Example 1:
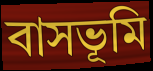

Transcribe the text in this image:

বাসভূমি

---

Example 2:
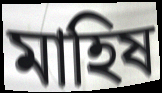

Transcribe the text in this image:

মাহিষ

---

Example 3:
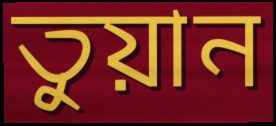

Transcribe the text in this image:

তুয়ান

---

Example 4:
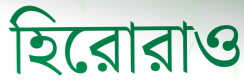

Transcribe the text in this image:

হিরোরাও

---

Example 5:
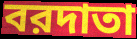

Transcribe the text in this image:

বরদাতা